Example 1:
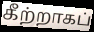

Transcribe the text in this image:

கீற்றாகப்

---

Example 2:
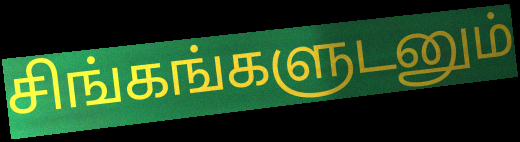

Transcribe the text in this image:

சிங்கங்களுடனும்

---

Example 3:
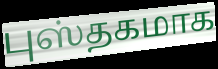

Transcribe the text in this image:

புஸ்தகமாக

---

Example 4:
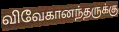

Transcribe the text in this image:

விவேகானந்தருக்கு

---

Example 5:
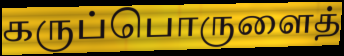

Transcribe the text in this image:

கருப்பொருளைத்